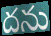
దను